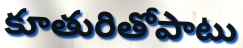
కూతురితోపాటు